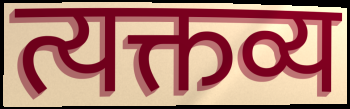
त्यक्तव्य